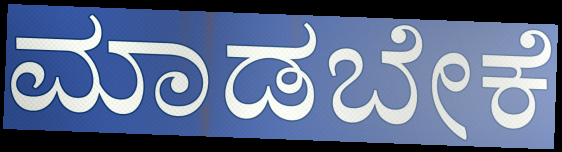
ಮಾಡಬೇಕೆ